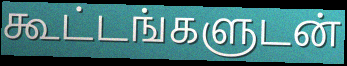
கூட்டங்களுடன்